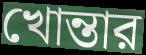
খোন্তার